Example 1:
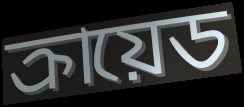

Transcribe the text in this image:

ক্রায়েড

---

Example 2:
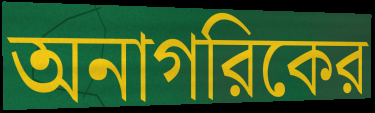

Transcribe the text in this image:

অনাগরিকের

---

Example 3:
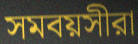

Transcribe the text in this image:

সমবয়সীরা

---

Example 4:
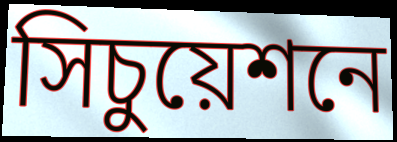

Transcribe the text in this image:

সিচুয়েশনে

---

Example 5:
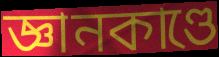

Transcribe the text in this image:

জ্ঞানকাণ্ডে